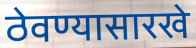
ठेवण्यासारखे